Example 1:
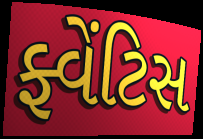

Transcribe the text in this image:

ફ્વેંટિસ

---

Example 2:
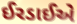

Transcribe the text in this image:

ઈરડાઈએ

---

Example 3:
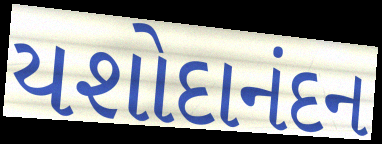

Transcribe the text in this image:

યશોદાનંદન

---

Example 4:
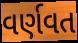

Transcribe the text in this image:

વર્ણવત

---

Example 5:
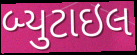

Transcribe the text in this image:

બ્યુટાઇલ